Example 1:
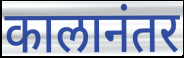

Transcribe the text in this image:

कालानंतर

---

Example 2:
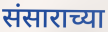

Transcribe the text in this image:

संसाराच्या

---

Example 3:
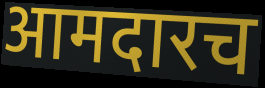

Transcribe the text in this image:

आमदारच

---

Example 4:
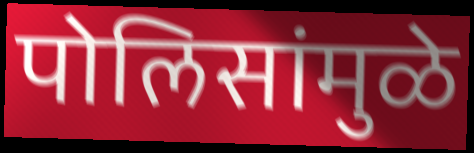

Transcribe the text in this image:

पोलिसांमुळे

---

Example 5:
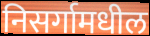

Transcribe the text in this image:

निसर्गामधील